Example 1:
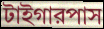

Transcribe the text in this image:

টাইগারপাস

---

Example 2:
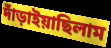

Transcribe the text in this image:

দাঁড়াইয়াছিলাম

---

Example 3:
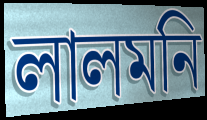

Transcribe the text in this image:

লালমনি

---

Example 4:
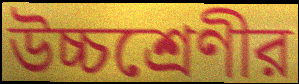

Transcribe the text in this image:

উচ্চশ্রেণীর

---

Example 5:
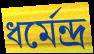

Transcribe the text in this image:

ধর্মেন্দ্র